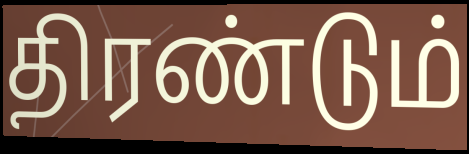
திரண்டும்